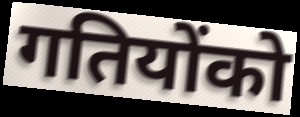
गतियोंको